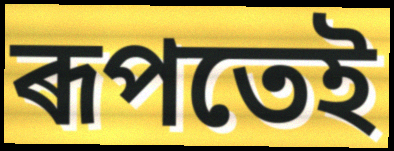
ৰূপতেই